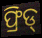
ଫ୍ରିଡ୍